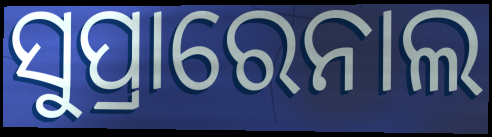
ସୁପ୍ରାରେନାଲ